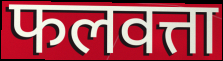
फलवत्ता